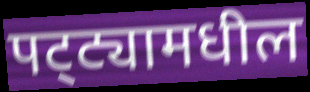
पट्ट्यामधील